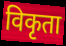
विकृता